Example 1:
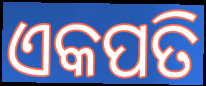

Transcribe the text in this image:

ଏକପତି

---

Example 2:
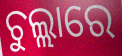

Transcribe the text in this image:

ଚୁଲ୍ଲାରେ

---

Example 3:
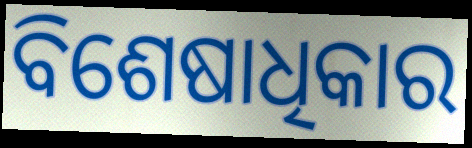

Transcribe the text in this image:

ବିଶେଷାଧିକାର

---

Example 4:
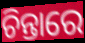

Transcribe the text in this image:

ଚିନ୍ତାରେ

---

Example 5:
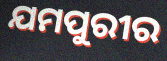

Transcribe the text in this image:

ଯମପୁରୀର